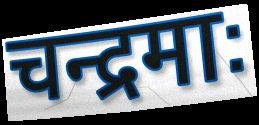
चन्द्रमाः